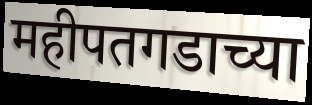
महीपतगडाच्या